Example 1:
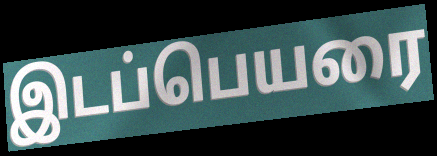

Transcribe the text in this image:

இடப்பெயரை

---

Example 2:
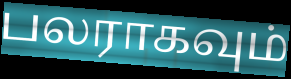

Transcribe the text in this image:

பலராகவும்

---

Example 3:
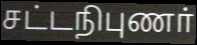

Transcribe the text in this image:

சட்டநிபுணர்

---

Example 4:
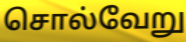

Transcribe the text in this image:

சொல்வேறு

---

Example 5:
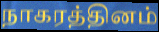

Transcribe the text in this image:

நாகரத்தினம்